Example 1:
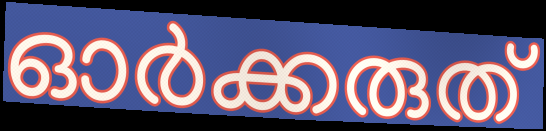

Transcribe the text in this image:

ഓർക്കരുത്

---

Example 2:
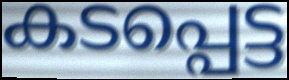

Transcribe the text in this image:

കടപ്പെട്ട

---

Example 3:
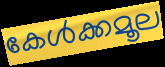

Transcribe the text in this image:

കേൾക്കമൂല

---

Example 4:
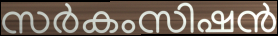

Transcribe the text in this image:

സർകംസിഷൻ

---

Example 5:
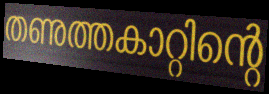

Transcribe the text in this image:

തണുത്തകാറ്റിന്റെ